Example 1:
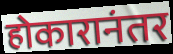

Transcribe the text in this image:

होकारानंतर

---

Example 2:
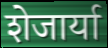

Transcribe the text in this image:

शेजार्या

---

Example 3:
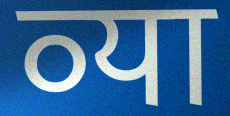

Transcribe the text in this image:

व्‍या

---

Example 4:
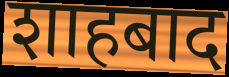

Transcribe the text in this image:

शाहबाद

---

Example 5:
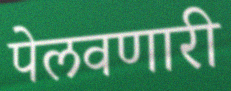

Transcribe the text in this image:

पेलवणारी